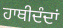
ਹਾਥੀਦੰਦਾਂ